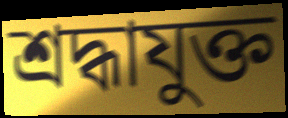
শ্রদ্ধাযুক্ত